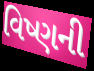
વિષ્ણની